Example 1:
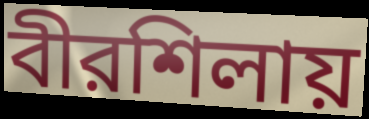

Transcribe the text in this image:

বীরশিলায়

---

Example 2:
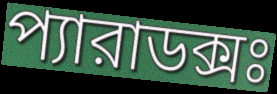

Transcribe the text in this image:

প্যারাডক্সঃ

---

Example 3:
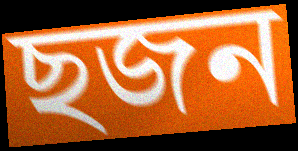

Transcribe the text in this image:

ছজন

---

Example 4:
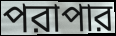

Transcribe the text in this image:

পরাপার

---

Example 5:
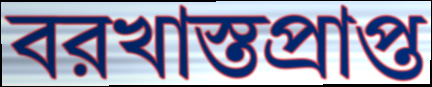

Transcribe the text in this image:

বরখাস্তপ্রাপ্ত